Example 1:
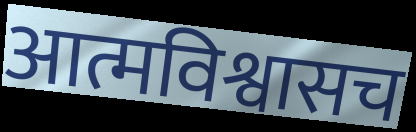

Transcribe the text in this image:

आत्मविश्वासच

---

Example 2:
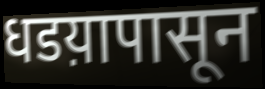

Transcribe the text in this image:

धडय़ापासून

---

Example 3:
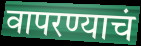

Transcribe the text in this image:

वापरण्याचं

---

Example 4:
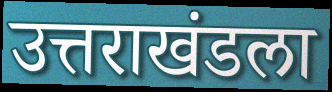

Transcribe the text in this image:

उत्तराखंडला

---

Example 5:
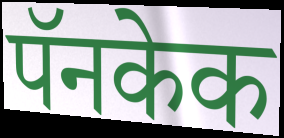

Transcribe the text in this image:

पॅनकेक